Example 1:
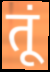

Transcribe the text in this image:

तूं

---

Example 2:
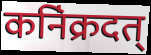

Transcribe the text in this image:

कनि॑क्रदत्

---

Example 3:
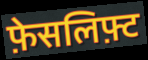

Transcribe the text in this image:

फ़ेसलिफ़्ट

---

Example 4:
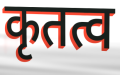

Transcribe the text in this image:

कृतत्व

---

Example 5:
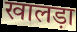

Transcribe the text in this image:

खालड़ा